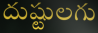
దుష్టులగు